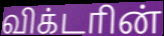
விக்டரின்